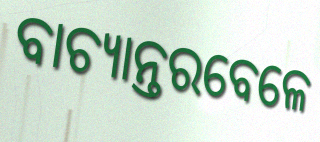
ବାଚ୍ୟାନ୍ତରବେଳେ